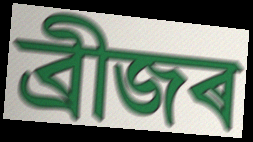
ব্ৰীজৰ